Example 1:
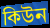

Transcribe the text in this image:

কিউন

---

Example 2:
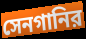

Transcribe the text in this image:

সেনগানির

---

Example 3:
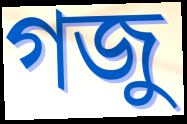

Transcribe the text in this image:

গজু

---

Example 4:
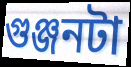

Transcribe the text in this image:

গুঞ্জনটা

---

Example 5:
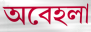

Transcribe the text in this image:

অবেহলা